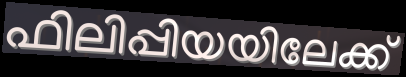
ഫിലിപ്പിയയിലേക്ക്